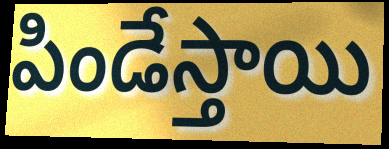
పిండేస్తాయి